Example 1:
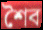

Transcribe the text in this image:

শৈব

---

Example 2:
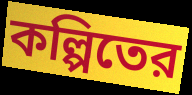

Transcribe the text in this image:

কল্পিতের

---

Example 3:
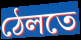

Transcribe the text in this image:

ঠেলতে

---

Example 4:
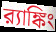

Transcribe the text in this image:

র‍্যাঙ্কিং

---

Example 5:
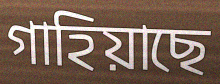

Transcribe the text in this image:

গাহিয়াছে